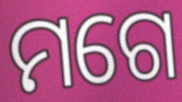
ମଗେ